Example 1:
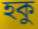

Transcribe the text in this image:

হকু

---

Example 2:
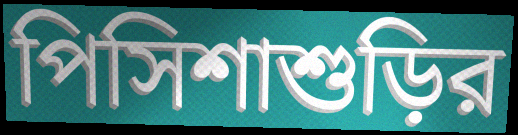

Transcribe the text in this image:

পিসিশাশুড়ির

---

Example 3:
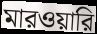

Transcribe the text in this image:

মারওয়ারি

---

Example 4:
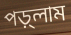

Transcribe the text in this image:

পড়্‌লাম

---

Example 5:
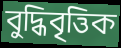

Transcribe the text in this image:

বুদ্ধিবৃত্তিক